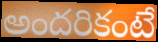
అందరికంటే